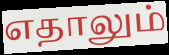
எதாலும்